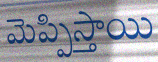
మెప్పిస్తాయి